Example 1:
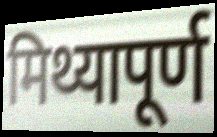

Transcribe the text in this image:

मिथ्यापूर्ण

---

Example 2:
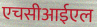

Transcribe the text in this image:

एचसीआईएल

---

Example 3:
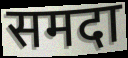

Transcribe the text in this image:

समदा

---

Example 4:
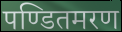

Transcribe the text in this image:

पण्डितमरण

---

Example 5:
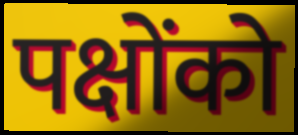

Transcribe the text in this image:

पक्षोंको